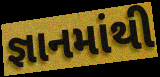
જ્ઞાનમાંથી